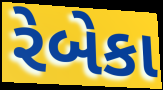
રેબેકા